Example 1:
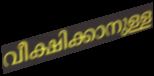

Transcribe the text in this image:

വീക്ഷിക്കാനുള്ള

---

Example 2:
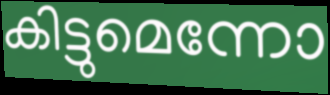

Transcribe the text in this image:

കിട്ടുമെന്നോ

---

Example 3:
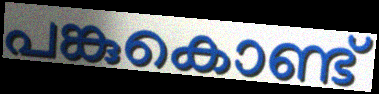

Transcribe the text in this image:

പങ്കുകൊണ്ട്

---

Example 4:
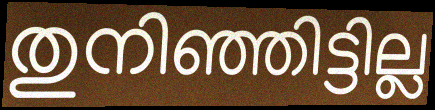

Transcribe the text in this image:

തുനിഞ്ഞിട്ടില്ല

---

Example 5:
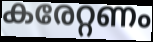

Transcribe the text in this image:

കരേറ്റണം